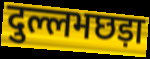
दुल्लभछड़ा